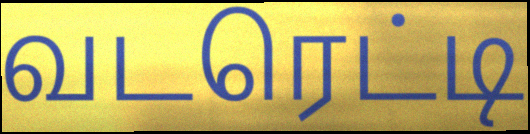
வடரெட்டி